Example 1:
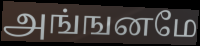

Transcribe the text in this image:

அங்ஙனமே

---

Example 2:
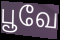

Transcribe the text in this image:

பூவே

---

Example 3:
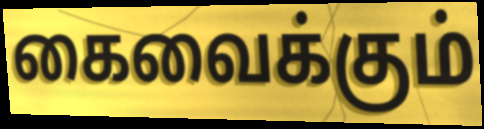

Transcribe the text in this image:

கைவைக்கும்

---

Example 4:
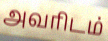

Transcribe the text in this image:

அவரிடம்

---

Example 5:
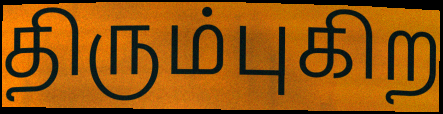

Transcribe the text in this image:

திரும்புகிற